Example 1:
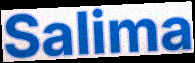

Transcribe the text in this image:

Salima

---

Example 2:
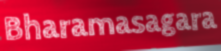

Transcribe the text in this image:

Bharamasagara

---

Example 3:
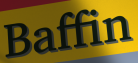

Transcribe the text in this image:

Baffin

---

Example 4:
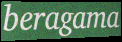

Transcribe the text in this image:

beragama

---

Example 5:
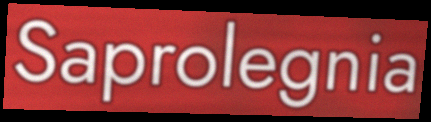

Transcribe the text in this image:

Saprolegnia